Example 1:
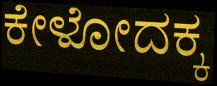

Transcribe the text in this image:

ಕೇಳೋದಕ್ಕ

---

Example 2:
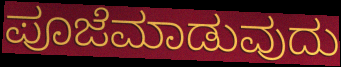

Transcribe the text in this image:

ಪೂಜೆಮಾಡುವುದು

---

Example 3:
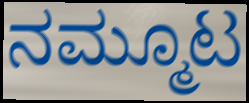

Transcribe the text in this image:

ನಮ್ಮೂಟ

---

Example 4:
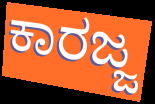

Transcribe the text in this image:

ಕಾರಜ್ಜ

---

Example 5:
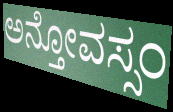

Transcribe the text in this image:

ಅನ್ತೋವಸ್ಸಂ